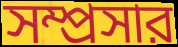
সম্প্রসার